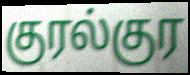
குரல்குர